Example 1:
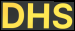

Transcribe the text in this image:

DHS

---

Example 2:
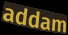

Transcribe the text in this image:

addam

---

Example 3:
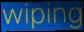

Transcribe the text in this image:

wiping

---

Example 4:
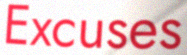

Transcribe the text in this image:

Excuses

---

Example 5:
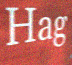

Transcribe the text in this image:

Hag